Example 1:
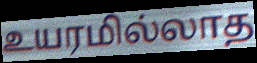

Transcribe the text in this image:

உயரமில்லாத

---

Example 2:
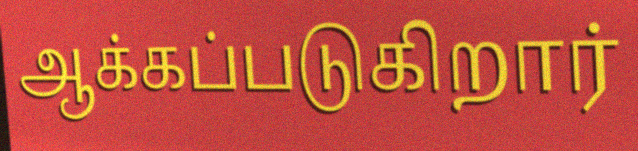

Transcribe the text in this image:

ஆக்கப்படுகிறார்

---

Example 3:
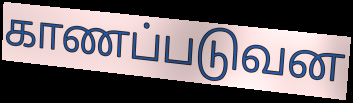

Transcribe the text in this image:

காணப்படுவன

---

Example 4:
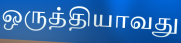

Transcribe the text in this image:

ஒருத்தியாவது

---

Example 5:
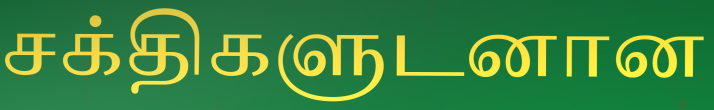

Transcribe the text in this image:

சக்திகளுடனான